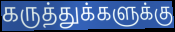
கருத்துக்களுக்கு